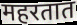
महरतात